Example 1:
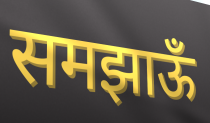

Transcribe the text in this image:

समझाऊँ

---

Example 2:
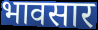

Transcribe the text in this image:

भावसार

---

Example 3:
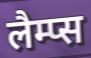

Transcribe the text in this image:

लैम्प्स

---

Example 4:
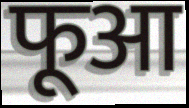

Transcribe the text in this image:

फूआ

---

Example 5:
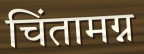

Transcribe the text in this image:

चिंतामग्न